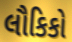
લૌકિકો